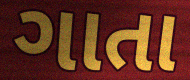
ગાતા